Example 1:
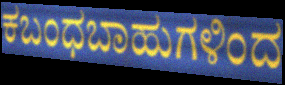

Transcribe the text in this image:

ಕಬಂಧಬಾಹುಗಳಿಂದ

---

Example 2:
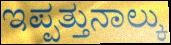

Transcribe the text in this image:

ಇಪ್ಪತ್ತುನಾಲ್ಕು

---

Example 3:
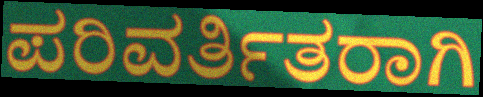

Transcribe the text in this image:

ಪರಿವರ್ತಿತರಾಗಿ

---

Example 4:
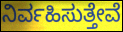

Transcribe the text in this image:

ನಿರ್ವಹಿಸುತ್ತೇವೆ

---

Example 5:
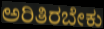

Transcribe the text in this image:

ಅರಿತಿರಬೇಕು